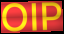
OIP